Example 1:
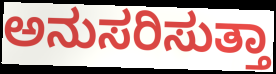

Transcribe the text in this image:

ಅನುಸರಿಸುತ್ತಾ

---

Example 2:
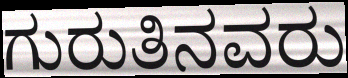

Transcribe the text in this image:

ಗುರುತಿನವರು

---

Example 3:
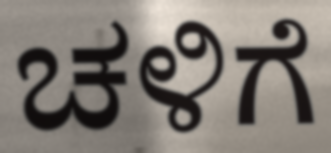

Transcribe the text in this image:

ಚಳಿಗೆ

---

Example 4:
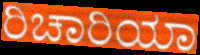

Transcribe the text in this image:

ರಿಚಾರಿಯಾ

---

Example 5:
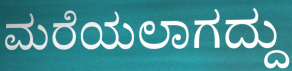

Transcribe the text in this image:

ಮರೆಯಲಾಗದ್ದು